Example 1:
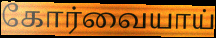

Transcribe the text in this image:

கோர்வையாய்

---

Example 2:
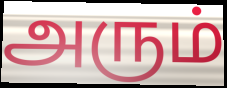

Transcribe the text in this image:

அரும்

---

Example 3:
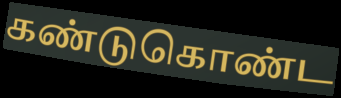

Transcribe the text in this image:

கண்டுகொண்ட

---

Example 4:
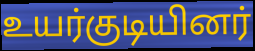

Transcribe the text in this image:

உயர்குடியினர்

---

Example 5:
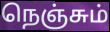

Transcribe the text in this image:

நெஞ்சும்